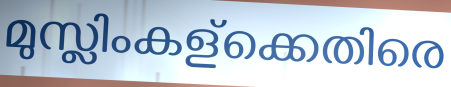
മുസ്ലിംകള്ക്കെതിരെ